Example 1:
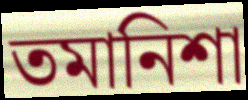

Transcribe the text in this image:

তমানিশা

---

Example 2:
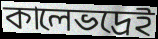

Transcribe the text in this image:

কালেভদ্রেই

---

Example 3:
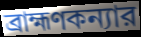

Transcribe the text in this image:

ব্রাহ্মণকন্যার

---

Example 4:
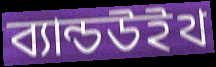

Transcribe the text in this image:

ব্যান্ডউইথ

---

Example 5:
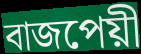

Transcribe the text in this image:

বাজপেয়ী